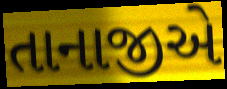
તાનાજીએ